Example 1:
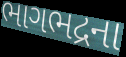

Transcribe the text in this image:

ભાગભદ્રના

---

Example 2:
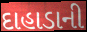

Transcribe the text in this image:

દાહાડાની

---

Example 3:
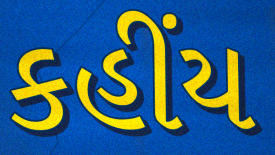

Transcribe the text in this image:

કહીંય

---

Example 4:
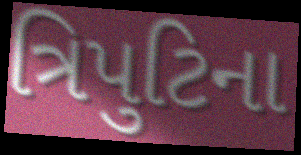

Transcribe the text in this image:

ત્રિપુટિના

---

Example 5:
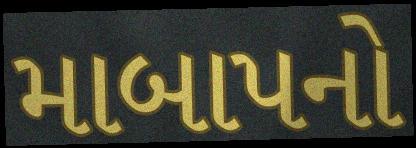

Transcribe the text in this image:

માબાપનો